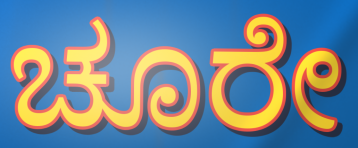
ಚೂರೇ